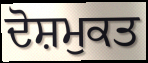
ਦੋਸ਼ਮੁਕਤ